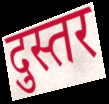
दुस्तर